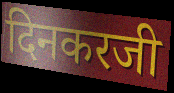
दिनकरजी